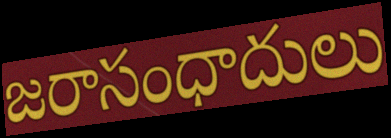
జరాసంధాదులు